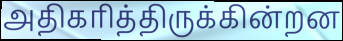
அதிகரித்திருக்கின்றன